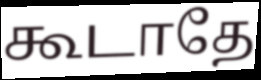
கூடாதே